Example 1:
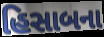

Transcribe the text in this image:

હિસાબના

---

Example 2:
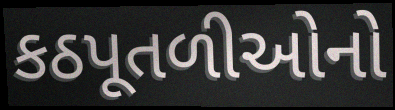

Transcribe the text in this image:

કઠપૂતળીઓનો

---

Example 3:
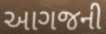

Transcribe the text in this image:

આગજની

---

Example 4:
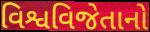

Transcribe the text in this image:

વિશ્વવિજેતાનો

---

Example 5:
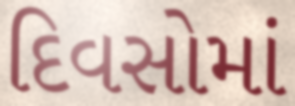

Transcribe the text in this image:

દિવસોમાં